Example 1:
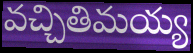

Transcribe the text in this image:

వచ్చితిమయ్య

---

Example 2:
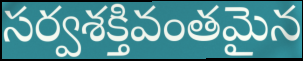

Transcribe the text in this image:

సర్వశక్తివంతమైన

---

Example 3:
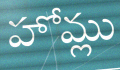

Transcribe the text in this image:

హోమ్లు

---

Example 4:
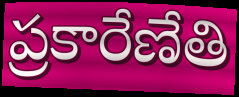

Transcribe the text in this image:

ప్రకారేణేతి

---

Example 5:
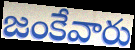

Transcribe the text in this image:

జంకేవారు